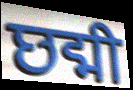
छद्मी